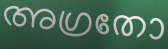
അഗ്രതോ